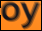
oy